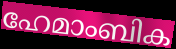
ഹേമാംബിക